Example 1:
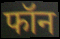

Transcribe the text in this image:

फॉन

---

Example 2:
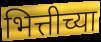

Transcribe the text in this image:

भित्तीच्या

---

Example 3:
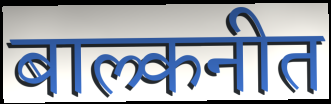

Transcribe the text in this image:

बाल्कनीत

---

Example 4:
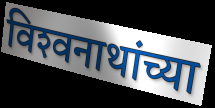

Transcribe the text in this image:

विश्वनाथांच्या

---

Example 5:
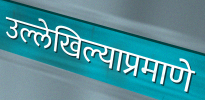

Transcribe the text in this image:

उल्लेखिल्याप्रमाणे